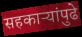
सहकाऱ्यांपुढे